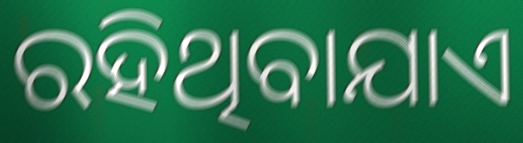
ରହିଥିବାଯାଏ